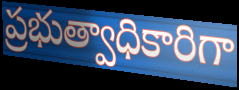
ప్రభుత్వాధికారిగా